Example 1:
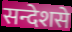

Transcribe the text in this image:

सन्देशसे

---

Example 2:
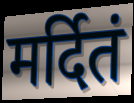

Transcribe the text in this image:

मर्दितं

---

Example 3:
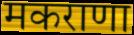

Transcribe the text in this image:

मकराणा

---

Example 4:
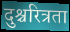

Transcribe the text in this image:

दुश्चरित्रता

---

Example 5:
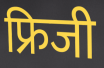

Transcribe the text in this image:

फ्रिजी